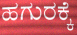
ಹಗುರಕ್ಕೆ